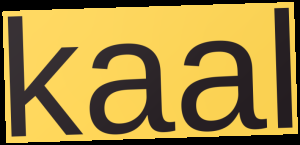
kaal